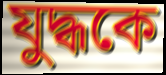
যুদ্ধকে